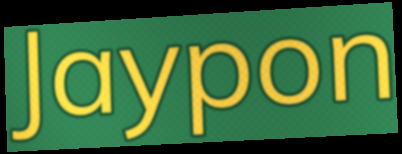
Jaypon